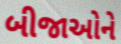
બીજાઓને